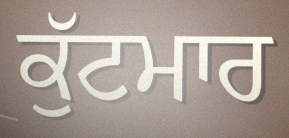
ਕੁੱਟਮਾਰ